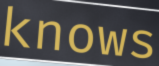
knows